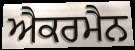
ਐਕਰਮੈਨ